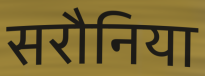
सरौनिया